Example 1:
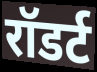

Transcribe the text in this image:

रॉडर्ट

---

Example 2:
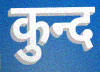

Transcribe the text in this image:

कुन्द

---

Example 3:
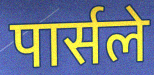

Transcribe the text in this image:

पार्सले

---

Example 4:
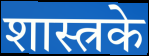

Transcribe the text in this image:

शास्त्रके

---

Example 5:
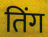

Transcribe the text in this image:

तिंग